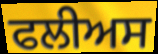
ਫਲੀਅਸ